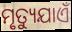
ମୃତ୍ୟୁଯାଏଁ